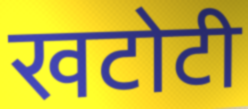
खटोटी